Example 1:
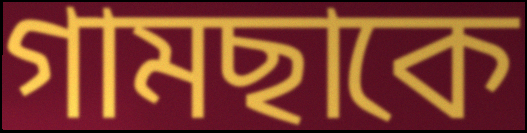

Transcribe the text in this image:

গামছাকে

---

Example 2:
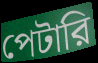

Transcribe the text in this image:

পেটারি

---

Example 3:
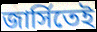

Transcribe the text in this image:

জার্সিতেই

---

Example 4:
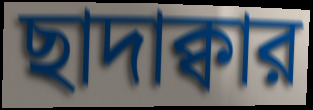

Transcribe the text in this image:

ছাদাক্বার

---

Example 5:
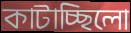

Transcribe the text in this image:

কাটাচ্ছিলো